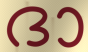
ദാ